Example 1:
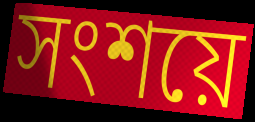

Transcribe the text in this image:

সংশয়ে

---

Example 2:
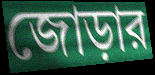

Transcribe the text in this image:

জোড়ার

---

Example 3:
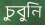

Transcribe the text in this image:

চুবুনি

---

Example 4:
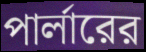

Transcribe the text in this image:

পার্লারের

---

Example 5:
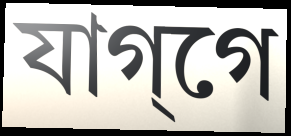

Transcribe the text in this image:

যাগ্‌গে